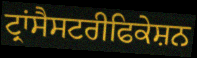
ਟ੍ਰਾਂਸੈਸਟਰੀਫਿਕੇਸ਼ਨ